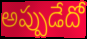
అప్పుడేదో